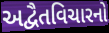
અદ્વૈતવિચારનો